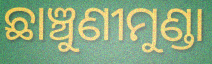
ଛାଞ୍ଚୁଣୀମୁଣ୍ଡା